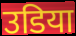
उडिया